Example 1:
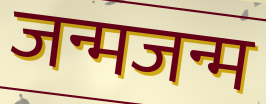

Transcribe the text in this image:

जन्मजन्म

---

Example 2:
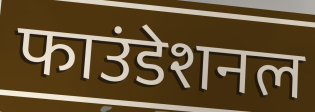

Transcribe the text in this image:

फाउंडेशनल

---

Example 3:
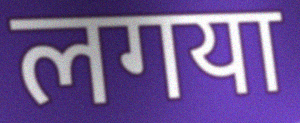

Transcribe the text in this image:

लगया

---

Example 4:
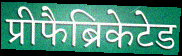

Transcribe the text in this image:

प्रीफैब्रिकेटेड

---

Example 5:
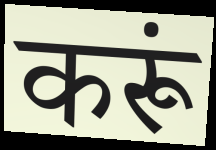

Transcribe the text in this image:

करूं